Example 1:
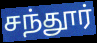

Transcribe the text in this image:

சந்தூர்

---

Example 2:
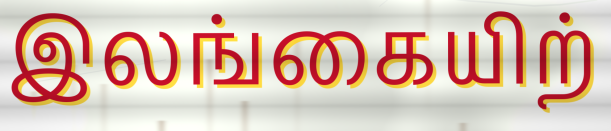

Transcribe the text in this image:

இலங்கையிற்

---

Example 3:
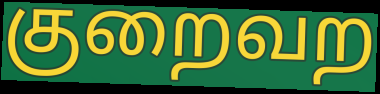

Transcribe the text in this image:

குறைவற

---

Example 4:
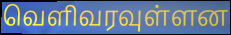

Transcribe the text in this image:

வெளிவரவுள்ளன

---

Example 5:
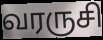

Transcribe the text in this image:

வரருசி